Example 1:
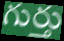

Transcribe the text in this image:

గుర్తు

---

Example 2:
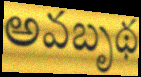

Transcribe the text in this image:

అవబృథ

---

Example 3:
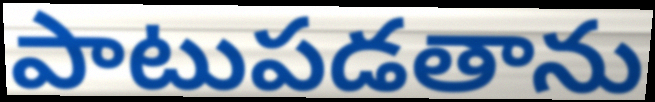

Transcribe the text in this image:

పాటుపడతాను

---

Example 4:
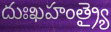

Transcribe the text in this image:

దుఃఖహంత్ర్యై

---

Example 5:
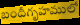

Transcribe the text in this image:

బందీగృహములో